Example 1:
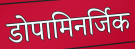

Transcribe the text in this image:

डोपामिनर्जिक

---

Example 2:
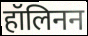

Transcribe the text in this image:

हॉलिनन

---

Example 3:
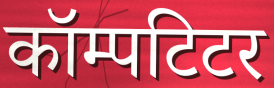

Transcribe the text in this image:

कॉम्पटिटर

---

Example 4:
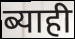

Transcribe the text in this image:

ब्याही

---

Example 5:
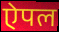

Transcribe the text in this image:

ऐपल